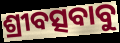
ଶ୍ରୀବତ୍ସବାବୁ